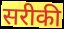
सरीकी